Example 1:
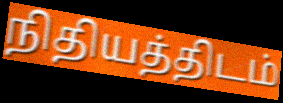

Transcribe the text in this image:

நிதியத்திடம்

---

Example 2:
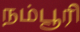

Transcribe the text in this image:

நம்பூரி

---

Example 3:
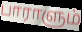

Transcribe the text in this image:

பாராளும்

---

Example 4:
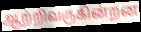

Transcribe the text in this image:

ஆற்றிவருகின்றன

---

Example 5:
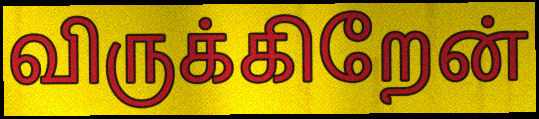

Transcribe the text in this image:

விருக்கிறேன்